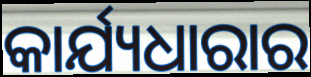
କାର୍ଯ୍ୟଧାରାର